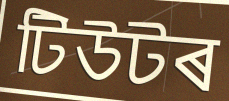
টিউটৰ